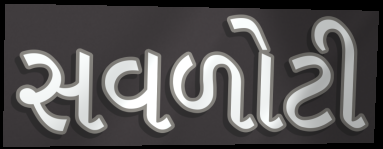
સવળોટી